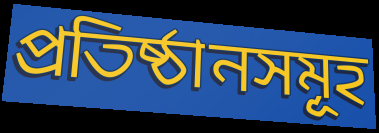
প্ৰতিষ্ঠানসমূহ